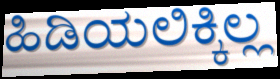
ಹಿಡಿಯಲಿಕ್ಕಿಲ್ಲ